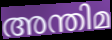
അന്തിമ